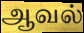
ஆவல்